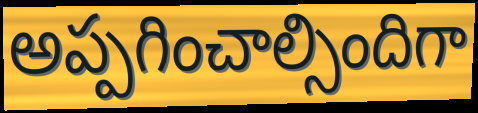
అప్పగించాల్సిందిగా